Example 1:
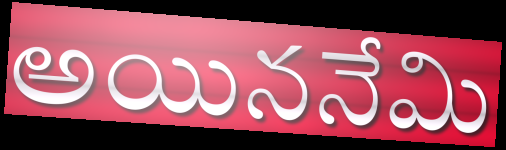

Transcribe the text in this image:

అయిననేమి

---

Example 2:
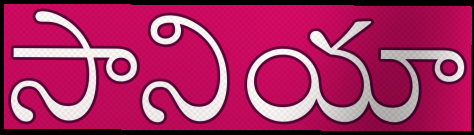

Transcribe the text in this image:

సానియా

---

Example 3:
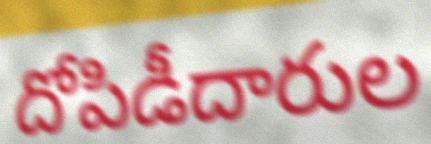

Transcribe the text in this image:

దోపిడీదారుల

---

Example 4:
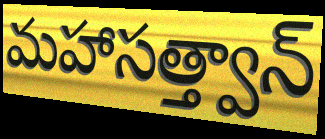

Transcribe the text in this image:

మహాసత్త్వాన్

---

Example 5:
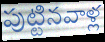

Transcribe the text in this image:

పుట్టినవాళ్ల